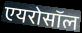
एयरोसॉल